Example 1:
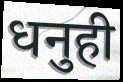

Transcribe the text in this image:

धनुही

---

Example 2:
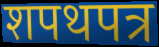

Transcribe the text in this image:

शपथपत्र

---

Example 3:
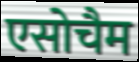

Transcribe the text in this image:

एसोचैम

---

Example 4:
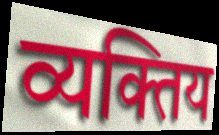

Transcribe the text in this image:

व्यक्तिय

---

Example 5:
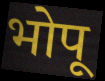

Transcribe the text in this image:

भोपू